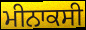
ਮੀਨਾਕਸੀ